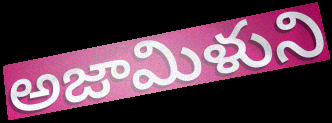
అజామిళుని